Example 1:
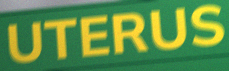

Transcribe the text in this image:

UTERUS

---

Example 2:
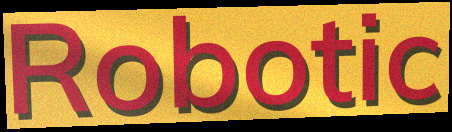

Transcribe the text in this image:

Robotic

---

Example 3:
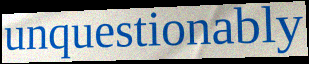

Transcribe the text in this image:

unquestionably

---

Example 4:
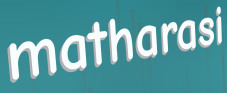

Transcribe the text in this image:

matharasi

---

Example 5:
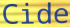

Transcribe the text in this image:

Cide